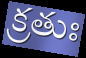
క్రతుః